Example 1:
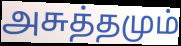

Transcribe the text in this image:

அசுத்தமும்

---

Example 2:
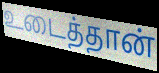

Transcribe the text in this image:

உடைத்தான்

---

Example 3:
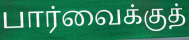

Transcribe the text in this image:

பார்வைக்குத்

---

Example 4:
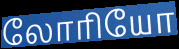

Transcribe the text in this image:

லோரியோ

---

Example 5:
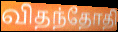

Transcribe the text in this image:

விதந்தோதி